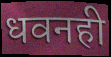
धवनही